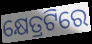
କ୍ଷେତ୍ରଟିରେ